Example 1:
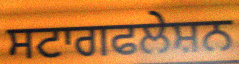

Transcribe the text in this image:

ਸਟਾਗਫਲੇਸ਼ਨ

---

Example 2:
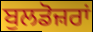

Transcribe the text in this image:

ਬੁਲਡੋਜ਼ਰਾਂ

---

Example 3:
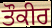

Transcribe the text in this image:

ਤੌਕੀਰ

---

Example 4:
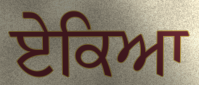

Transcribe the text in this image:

ਏਕਿਆ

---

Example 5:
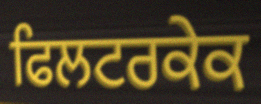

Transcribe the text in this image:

ਫਿਲਟਰਕੇਕ